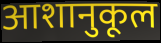
आशानुकूल